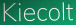
Kiecolt